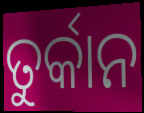
ତୁର୍କାନ